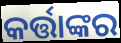
କର୍ତ୍ତାଙ୍କର